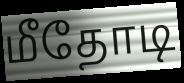
மீதோடி